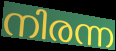
നിരന്ന